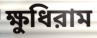
ক্ষুধিরাম